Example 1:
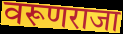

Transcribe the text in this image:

वरूणराजा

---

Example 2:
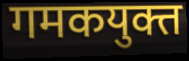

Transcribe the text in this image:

गमकयुक्त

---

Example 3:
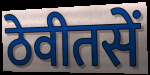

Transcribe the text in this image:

ठेवीतसें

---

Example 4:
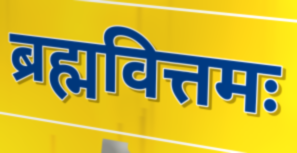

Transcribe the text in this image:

ब्रह्मवित्तमः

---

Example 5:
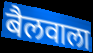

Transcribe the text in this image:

बैलवाला